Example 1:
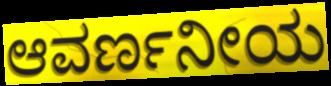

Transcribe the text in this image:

ಆವರ್ಣನೀಯ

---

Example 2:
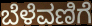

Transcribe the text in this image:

ಬೆಳೆವಣಿಗೆ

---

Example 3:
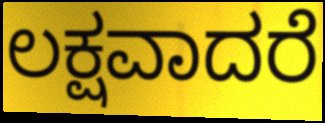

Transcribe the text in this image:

ಲಕ್ಷವಾದರೆ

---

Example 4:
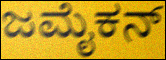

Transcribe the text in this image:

ಜಮೈಕನ್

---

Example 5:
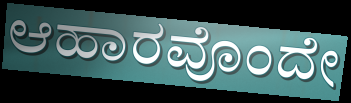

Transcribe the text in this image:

ಆಹಾರವೊಂದೇ